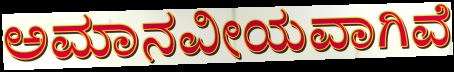
ಅಮಾನವೀಯವಾಗಿವೆ